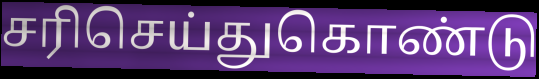
சரிசெய்துகொண்டு